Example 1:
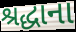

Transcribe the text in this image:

શ્રદ્ધાના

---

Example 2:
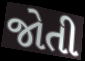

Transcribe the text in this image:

જોતી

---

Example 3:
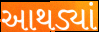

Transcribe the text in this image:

આથડ્યાં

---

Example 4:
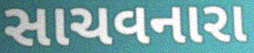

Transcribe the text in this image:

સાચવનારા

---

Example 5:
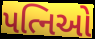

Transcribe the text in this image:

પત્નિઓ